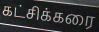
கட்சிக்கரை